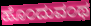
ಹೊಂದುವಂಥ